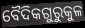
ବୈଦିକଗୁରୁକୁଳ